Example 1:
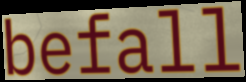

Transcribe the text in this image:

befall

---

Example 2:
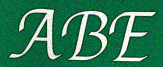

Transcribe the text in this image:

ABE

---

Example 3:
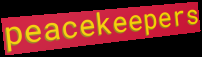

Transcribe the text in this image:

peacekeepers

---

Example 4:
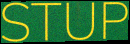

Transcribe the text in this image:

STUP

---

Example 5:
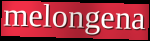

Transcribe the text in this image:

melongena